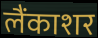
लैंकाशर